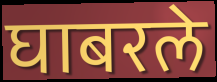
घाबरले